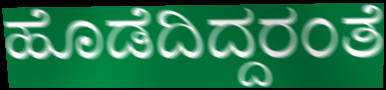
ಹೊಡೆದಿದ್ದರಂತೆ